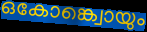
ഒകോങ്ക്വൊയും